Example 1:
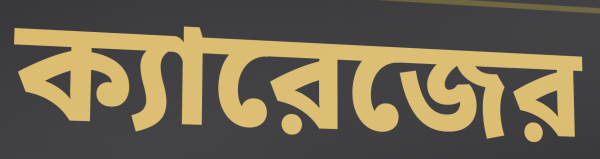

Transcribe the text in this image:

ক্যারেজের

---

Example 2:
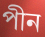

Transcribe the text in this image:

পীন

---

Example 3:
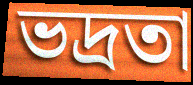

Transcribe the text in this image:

ভদ্রতা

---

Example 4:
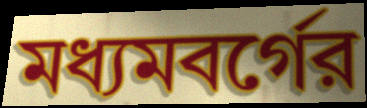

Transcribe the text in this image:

মধ্যমবর্গের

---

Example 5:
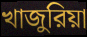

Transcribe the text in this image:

খাজুরিয়া